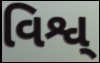
વિશ્વ્